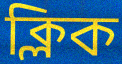
ক্লিক